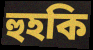
হুহকি